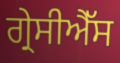
ਗ੍ਰੇਸੀਐੱਸ